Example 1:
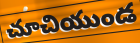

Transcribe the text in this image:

చూచియుండ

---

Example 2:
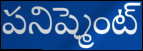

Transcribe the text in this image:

పనిష్మెంట్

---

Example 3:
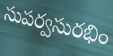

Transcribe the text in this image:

సుపర్వసురభిం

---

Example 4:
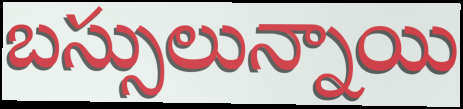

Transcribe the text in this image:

బస్సులున్నాయి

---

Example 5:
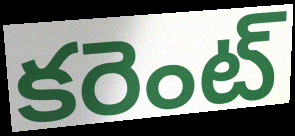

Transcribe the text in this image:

కరెంట్